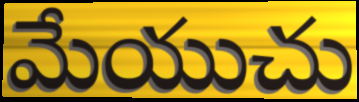
మేయుచు